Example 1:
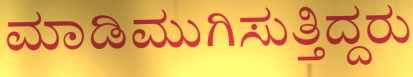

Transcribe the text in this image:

ಮಾಡಿಮುಗಿಸುತ್ತಿದ್ದರು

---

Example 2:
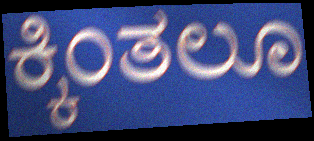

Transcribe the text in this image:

ಕ್ಕಿಂತಲೂ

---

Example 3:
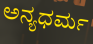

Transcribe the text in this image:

ಅನ್ಯಧರ್ಮ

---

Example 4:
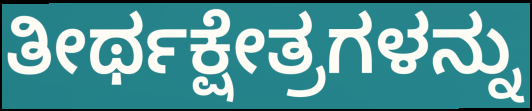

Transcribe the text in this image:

ತೀರ್ಥಕ್ಷೇತ್ರಗಳನ್ನು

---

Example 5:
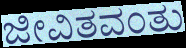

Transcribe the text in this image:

ಜೀವಿತವಂತು